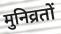
मुनिव्रतों